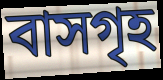
বাসগৃহ